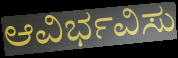
ಆವಿರ್ಭವಿಸು